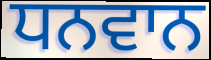
ਧਨਵਾਨ